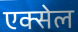
एक्सेल